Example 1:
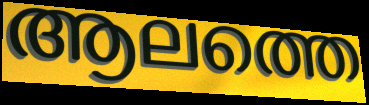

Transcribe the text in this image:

ആലത്തെ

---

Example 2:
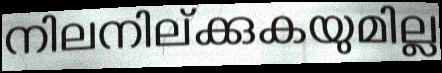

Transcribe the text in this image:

നിലനില്ക്കുകയുമില്ല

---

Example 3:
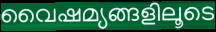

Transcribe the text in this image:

വൈഷമ്യങ്ങളിലൂടെ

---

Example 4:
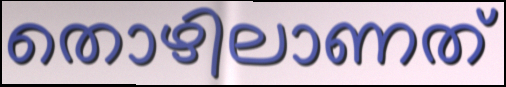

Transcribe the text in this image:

തൊഴിലാണത്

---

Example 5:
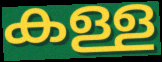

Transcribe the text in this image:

കള്ള